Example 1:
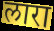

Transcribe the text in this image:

लारा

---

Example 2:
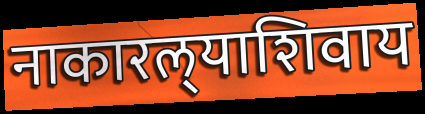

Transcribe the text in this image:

नाकारल्याशिवाय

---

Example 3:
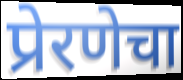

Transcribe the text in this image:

प्रेरणेचा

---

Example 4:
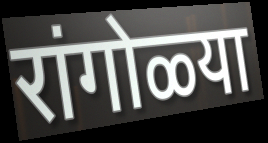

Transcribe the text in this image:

रांगोळ्या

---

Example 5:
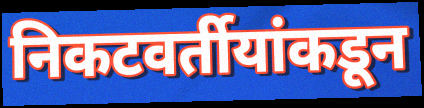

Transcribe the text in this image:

निकटवर्तीयांकडून